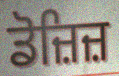
ਡੋਜ਼ਿਜ਼